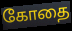
கோதை